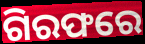
ଗିରଫରେ